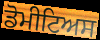
ਡੋਮੀਟਿਅਸ